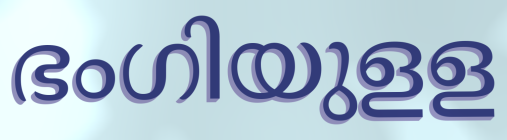
ഭംഗിയുളള